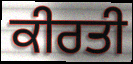
ਕੀਰਤੀ